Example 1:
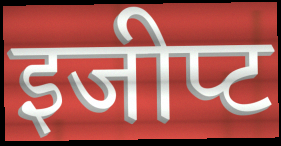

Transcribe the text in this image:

इजीप्ट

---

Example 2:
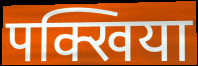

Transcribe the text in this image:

पक्खिया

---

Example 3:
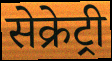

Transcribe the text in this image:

सेक्रेट्री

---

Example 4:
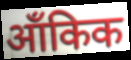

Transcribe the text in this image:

आँकिक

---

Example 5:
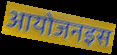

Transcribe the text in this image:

आयोजनइस